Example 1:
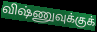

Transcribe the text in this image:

விஷ்ணுவுக்குக்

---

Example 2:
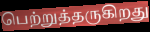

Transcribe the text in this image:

பெற்றுத்தருகிறது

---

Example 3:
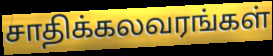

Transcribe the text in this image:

சாதிக்கலவரங்கள்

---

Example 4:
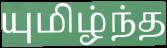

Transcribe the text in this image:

யுமிழ்ந்த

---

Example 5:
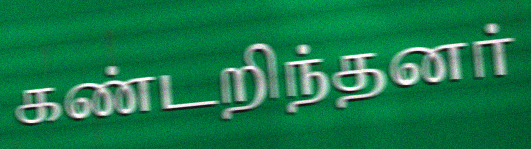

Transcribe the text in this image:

கண்டறிந்தனர்